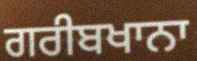
ਗਰੀਬਖਾਨਾ